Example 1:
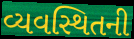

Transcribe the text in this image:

વ્યવસ્થિતની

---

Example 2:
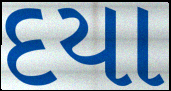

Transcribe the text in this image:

દયા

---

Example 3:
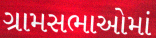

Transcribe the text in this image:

ગ્રામસભાઓમાં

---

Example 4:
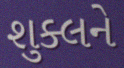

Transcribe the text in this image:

શુક્લને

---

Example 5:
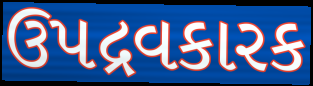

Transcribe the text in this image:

ઉપદ્રવકારક